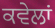
ਕਵੇਲਾਂ